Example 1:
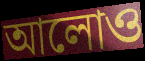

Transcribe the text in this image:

আলোও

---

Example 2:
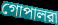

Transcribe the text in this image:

গোপালরা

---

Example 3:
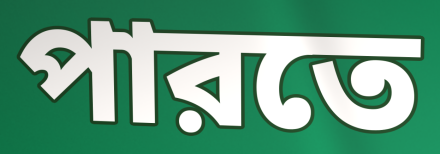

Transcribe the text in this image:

পারতে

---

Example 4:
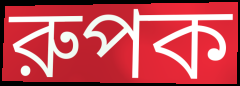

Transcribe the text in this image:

রুপক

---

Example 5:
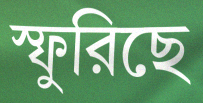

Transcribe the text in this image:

স্ফুরিছে